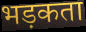
भड़कता